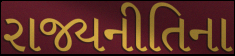
રાજ્યનીતિના